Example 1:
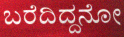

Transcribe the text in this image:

ಬರೆದಿದ್ದನೋ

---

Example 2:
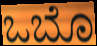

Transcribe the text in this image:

ಒಬೊ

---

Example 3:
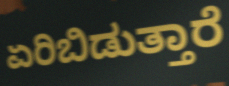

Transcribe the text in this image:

ಏರಿಬಿಡುತ್ತಾರೆ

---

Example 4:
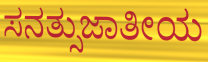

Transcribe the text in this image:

ಸನತ್ಸುಜಾತೀಯ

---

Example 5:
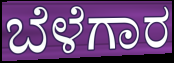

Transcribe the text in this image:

ಬೆಳೆಗಾರ